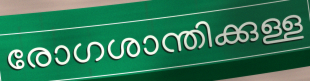
രോഗശാന്തിക്കുള്ള